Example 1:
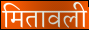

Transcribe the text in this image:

मितावली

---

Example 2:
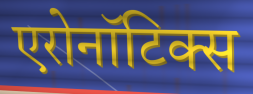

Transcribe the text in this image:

एरोनॉटिक्स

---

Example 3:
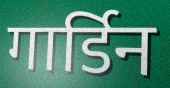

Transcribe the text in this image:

गार्डिन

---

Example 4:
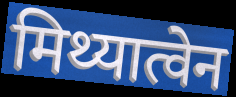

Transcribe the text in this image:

मिथ्यात्वेन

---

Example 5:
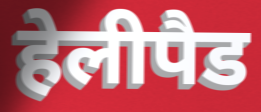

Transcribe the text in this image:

हेलीपैड